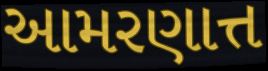
આમરણાત્ત